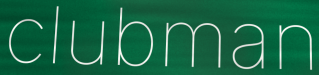
clubman